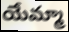
యేమ్మా